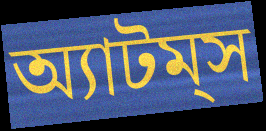
অ্যাটম্‌স